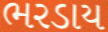
ભરડાય